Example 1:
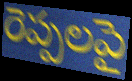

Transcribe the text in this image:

రెప్పలపై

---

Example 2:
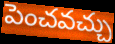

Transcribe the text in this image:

పెంచవచ్చు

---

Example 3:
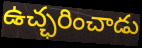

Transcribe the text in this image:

ఉచ్ఛరించాడు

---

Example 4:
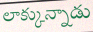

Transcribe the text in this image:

లాక్కున్నాడు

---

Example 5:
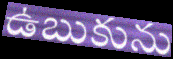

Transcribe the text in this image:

ఉబుకును